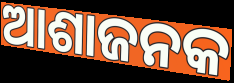
ଆଶାଜନକ